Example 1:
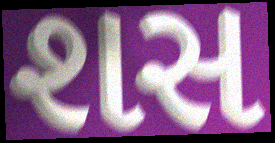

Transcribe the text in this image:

શસ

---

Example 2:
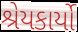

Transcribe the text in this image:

શ્રેયકાર્યો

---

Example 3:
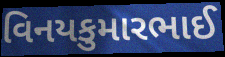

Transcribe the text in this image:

વિનયકુમારભાઈ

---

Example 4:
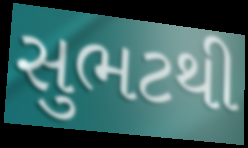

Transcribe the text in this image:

સુભટથી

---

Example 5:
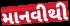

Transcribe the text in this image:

માનવીથી